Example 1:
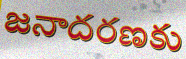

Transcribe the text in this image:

జనాదరణకు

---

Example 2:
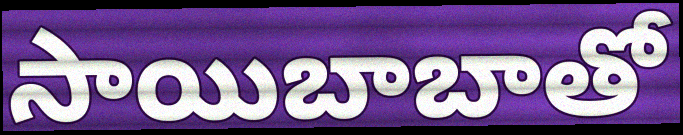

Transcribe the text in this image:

సాయిబాబాతో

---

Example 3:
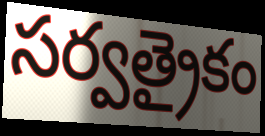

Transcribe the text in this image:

సర్వత్రైకం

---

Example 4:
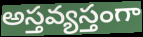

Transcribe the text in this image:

అస్తవ్యస్తంగా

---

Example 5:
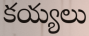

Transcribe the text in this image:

కయ్యలు